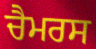
ਚੈਮਰਸ